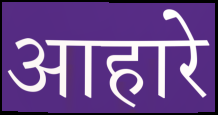
आहारे